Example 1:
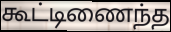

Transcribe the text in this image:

கூட்டிணைந்த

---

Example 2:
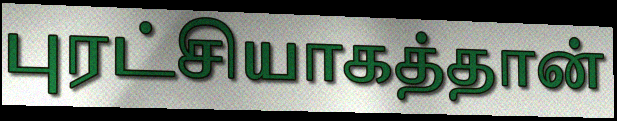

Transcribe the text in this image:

புரட்சியாகத்தான்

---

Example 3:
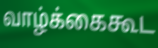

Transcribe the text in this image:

வாழ்க்கைகூட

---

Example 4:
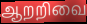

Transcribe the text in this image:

ஆறறிவை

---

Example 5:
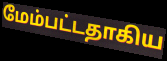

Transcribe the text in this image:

மேம்பட்டதாகிய